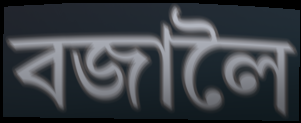
বজালৈ